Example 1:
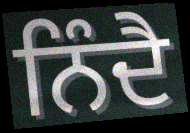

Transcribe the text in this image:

ਨਿੰਦੈ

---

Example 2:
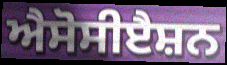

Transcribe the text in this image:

ਐਸੋਸੀੲੈਸ਼ਨ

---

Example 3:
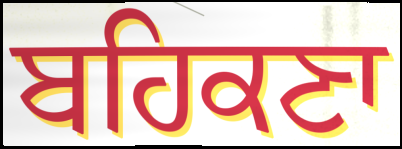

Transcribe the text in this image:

ਬਹਿਕਣਾ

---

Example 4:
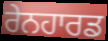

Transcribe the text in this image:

ਰੇਨਹਾਰਡ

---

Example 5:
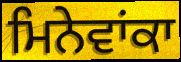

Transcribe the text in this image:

ਮਿਨੇਵਾਂਕਾ